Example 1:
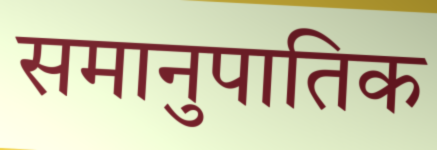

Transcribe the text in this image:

समानुपातिक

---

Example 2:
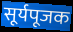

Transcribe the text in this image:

सूर्यपूजक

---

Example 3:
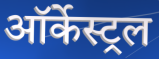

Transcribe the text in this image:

ऑर्केस्ट्रल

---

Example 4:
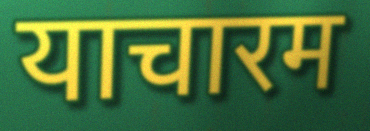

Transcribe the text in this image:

याचारम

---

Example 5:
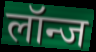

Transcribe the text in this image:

लॉन्ज